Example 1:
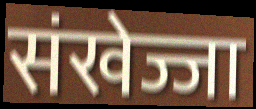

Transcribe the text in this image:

संखेज्जा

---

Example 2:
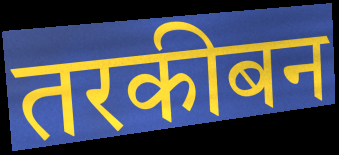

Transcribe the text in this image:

तरकीबन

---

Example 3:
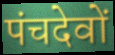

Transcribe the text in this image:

पंचदेवों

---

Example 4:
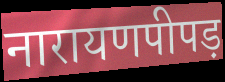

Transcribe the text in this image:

नारायणपीपड़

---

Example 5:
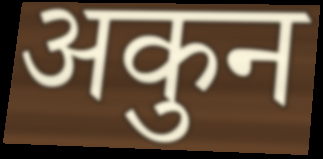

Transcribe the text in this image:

अकुन